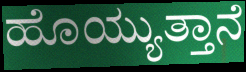
ಹೊಯ್ಯುತ್ತಾನೆ